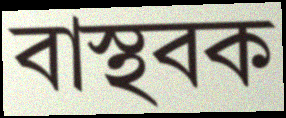
বাস্থবক